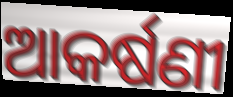
ଆକର୍ଷଣୀ